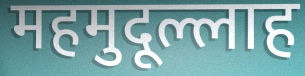
महमुदूल्लाह